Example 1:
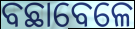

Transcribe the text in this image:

ବଛାବେଳେ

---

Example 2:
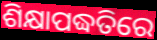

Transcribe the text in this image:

ଶିକ୍ଷାପଦ୍ଧତିରେ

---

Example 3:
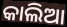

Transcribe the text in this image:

କାଲିଆ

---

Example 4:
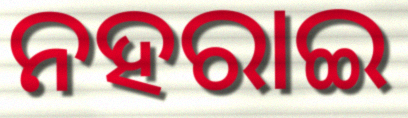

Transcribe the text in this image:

ନହରାଇ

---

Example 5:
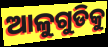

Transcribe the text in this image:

ଆଳୁଗୁଡିକୁ